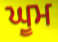
ਘੂਮ